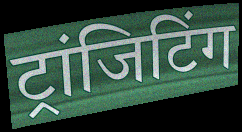
ट्रांजिटिंग